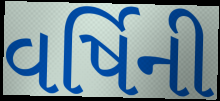
વર્ષિની